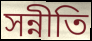
সন্নীতি